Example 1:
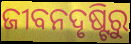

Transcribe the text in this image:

ଜୀବନଦୃଷ୍ଟିରୁ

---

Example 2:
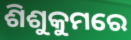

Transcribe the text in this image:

ଶିଶୁକୁମରେ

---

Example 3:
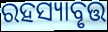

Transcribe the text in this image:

ରହସ୍ୟାବୃତ୍ତ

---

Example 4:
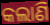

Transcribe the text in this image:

କଲାଣି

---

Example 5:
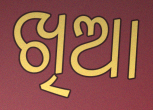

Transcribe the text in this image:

ଖିଆ